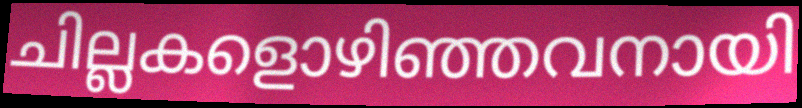
ചില്ലകളൊഴിഞ്ഞവനായി